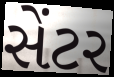
સેંટર